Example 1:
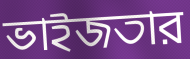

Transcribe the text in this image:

ভাইজতার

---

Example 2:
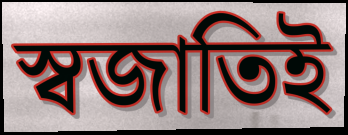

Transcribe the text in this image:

স্বজাতিই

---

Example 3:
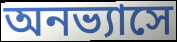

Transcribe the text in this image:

অনভ্যাসে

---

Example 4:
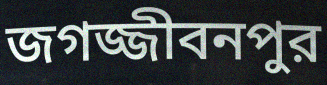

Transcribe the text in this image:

জগজ্জীবনপুর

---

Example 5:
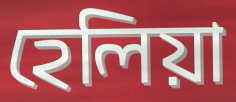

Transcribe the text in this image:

হেলিয়া